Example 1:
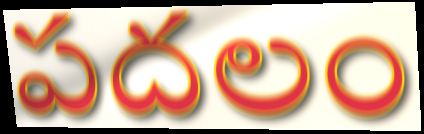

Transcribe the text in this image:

పదలం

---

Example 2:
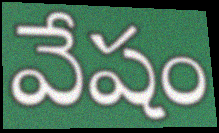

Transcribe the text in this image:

వేషం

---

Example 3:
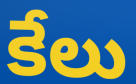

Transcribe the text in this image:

కేలు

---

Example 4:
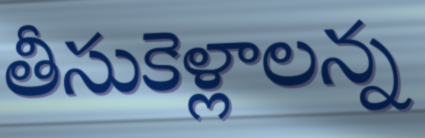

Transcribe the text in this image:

తీసుకెళ్లాలన్న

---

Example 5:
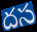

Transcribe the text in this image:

దస